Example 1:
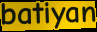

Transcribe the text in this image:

batiyan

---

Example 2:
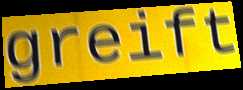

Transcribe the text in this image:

greift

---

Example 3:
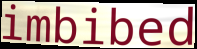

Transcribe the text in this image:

imbibed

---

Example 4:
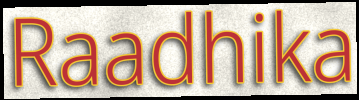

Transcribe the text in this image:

Raadhika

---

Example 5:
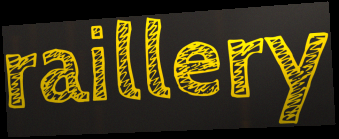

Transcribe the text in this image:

raillery